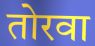
तोरवा